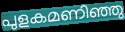
പുളകമണിഞ്ഞു